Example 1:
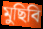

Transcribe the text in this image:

মুছিবি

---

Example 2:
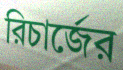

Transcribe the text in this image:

রিচার্জের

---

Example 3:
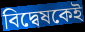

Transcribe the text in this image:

বিদ্বেষকেই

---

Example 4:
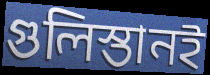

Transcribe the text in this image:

গুলিস্তানই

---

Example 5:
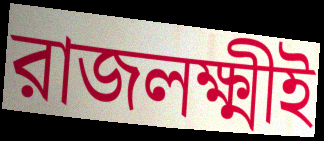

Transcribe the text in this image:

রাজলক্ষ্মীই